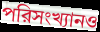
পরিসংখ্যানও